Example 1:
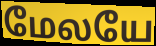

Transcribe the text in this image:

மேலயே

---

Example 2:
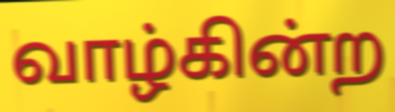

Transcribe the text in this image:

வாழ்கின்ற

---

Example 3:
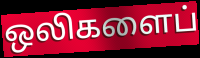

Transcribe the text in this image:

ஒலிகளைப்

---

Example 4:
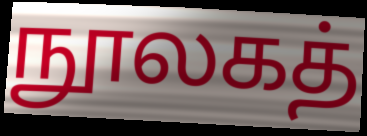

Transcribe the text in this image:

நூலகத்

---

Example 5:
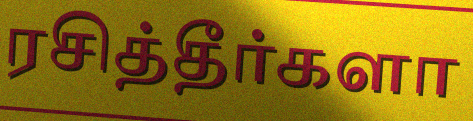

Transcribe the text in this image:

ரசித்தீர்களா